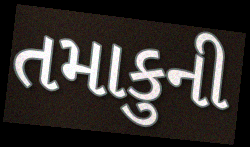
તમાકુની